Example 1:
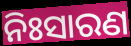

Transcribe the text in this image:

ନିଃସାରଣ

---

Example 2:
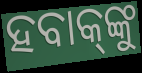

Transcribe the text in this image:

ହବାକ୍‌ଙ୍କୁ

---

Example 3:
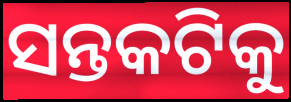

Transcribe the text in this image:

ସନ୍ତକଟିକୁ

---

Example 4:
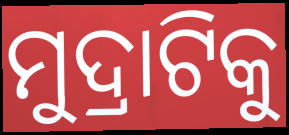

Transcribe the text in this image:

ମୁଦ୍ରାଟିକୁ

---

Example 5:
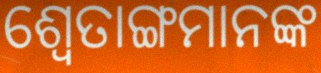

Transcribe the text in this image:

ଶ୍ଵେତାଙ୍ଗମାନଙ୍କ